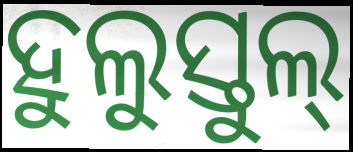
ହୁଲୁସ୍ତୁଲ୍